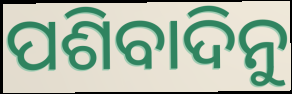
ପଶିବାଦିନୁ